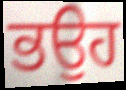
ਭਉਹ